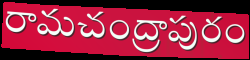
రామచంద్రాపురం